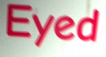
Eyed